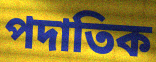
পদাতিক